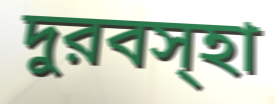
দুরবস্হা